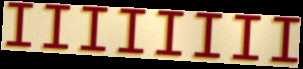
IIIIIIII